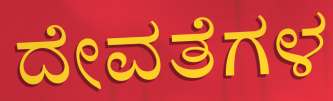
ದೇವತೆಗಳ